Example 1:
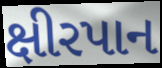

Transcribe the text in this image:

ક્ષીરપાન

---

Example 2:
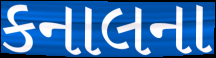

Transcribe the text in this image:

કનાલના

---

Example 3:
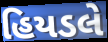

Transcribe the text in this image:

હિયડલે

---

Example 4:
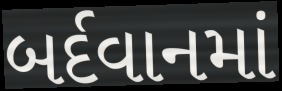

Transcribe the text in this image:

બર્દવાનમાં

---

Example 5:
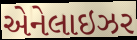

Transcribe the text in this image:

એનેલાઇઝર